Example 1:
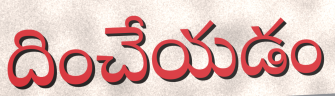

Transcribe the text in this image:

దించేయడం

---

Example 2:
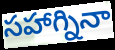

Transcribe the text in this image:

సహాగ్నినా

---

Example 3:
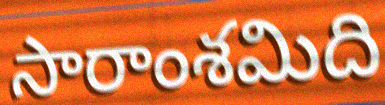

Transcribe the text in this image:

సారాంశమిది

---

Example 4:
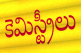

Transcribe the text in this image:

కెమిస్ట్రీలు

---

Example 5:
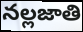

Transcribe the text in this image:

నల్లజాతి